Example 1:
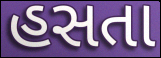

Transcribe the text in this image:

હસતા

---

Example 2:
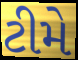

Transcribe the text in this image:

ટીમે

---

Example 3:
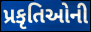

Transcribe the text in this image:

પ્રકૃતિઓની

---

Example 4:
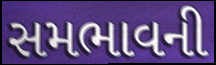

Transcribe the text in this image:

સમભાવની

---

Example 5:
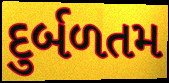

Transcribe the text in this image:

દુર્બળતમ